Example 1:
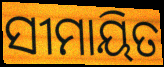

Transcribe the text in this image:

ସୀମାୟିତ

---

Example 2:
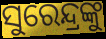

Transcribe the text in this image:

ସୁରେନ୍ଦ୍ରଙ୍କୁ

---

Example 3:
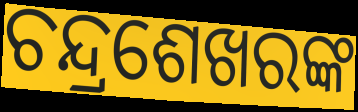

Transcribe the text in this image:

ଚନ୍ଦ୍ରଶେଖରଙ୍କ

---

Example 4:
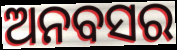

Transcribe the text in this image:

ଅନବସର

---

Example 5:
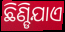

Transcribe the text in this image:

ଛିଣ୍ଡିଯାଏ